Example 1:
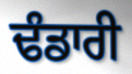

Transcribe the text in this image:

ਢੰਡਾਰੀ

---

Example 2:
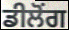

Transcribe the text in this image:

ਡੀਲੋਂਗ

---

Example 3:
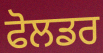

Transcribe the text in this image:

ਫੋਲਡਰ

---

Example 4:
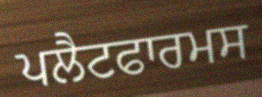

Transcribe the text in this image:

ਪਲੈਟਫਾਰਮਸ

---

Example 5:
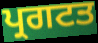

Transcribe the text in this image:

ਪ੍ਰਗਟਤ